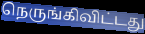
நெருங்கிவிட்டது